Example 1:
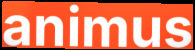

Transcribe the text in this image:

animus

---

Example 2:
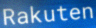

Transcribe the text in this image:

Rakuten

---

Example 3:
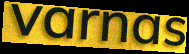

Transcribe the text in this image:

varnas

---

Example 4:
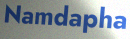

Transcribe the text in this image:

Namdapha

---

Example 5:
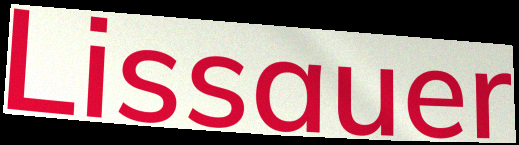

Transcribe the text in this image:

Lissauer